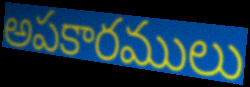
అపకారములు